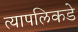
त्यापलिकडे